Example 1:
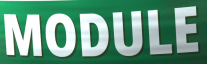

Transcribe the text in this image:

MODULE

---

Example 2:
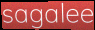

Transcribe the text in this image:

sagalee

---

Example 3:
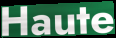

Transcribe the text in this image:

Haute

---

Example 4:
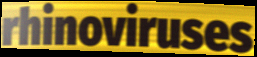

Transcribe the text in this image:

rhinoviruses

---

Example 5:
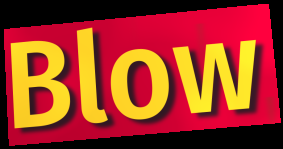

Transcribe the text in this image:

Blow